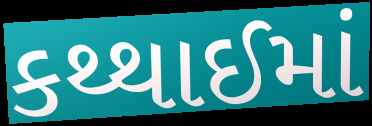
કથ્થાઈમાં